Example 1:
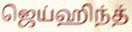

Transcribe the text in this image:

ஜெய்ஹிந்த்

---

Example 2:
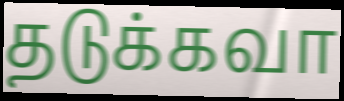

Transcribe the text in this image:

தடுக்கவா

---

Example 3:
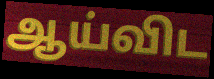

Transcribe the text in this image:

ஆய்விட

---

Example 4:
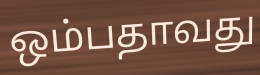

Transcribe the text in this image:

ஒம்பதாவது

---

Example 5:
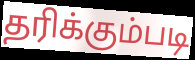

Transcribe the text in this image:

தரிக்கும்படி